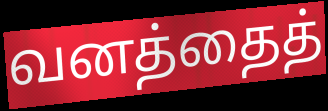
வனத்தைத்